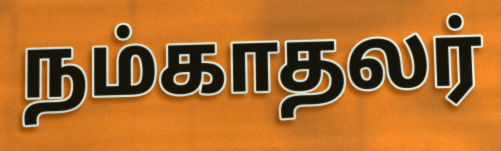
நம்காதலர்